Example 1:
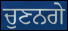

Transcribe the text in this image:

ਚੁਣਨਗੇ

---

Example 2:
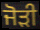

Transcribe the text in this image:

ਜੋੜੀ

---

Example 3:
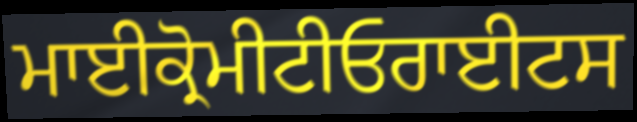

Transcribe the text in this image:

ਮਾਈਕ੍ਰੋਮੀਟੀਓਰਾਈਟਸ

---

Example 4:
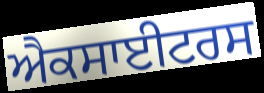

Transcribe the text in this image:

ਐਕਸਾਈਟਰਸ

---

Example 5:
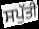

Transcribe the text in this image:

ਸਪੁੱਤੀ